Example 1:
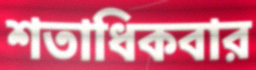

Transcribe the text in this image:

শতাধিকবার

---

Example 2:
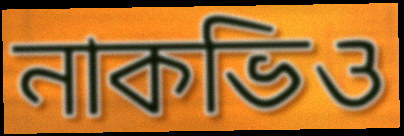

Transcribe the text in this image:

নাকভিও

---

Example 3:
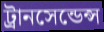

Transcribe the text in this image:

ট্রানসেন্ডেন্স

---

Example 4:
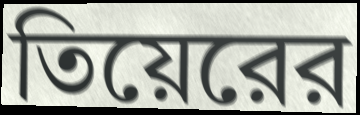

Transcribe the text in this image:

তিয়েরের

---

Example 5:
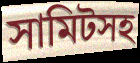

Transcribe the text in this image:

সামিটসহ